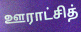
ஊராட்சித்